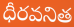
ధీరవనిత